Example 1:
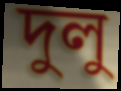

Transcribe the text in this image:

দুলু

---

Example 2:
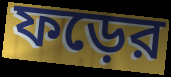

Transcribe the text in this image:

ফড়ের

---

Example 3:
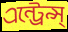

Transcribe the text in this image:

এন্ট্রেন্স্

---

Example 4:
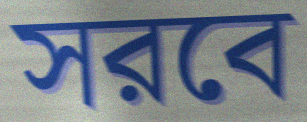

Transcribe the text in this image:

সরবে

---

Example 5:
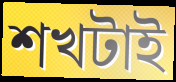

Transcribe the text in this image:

শখটাই